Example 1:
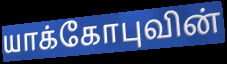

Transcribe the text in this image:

யாக்கோபுவின்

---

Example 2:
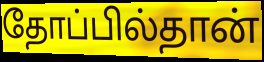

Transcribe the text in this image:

தோப்பில்தான்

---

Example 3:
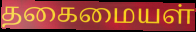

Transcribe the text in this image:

தகைமையள்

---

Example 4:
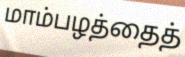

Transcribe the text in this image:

மாம்பழத்தைத்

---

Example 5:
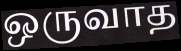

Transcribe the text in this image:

ஒருவாத